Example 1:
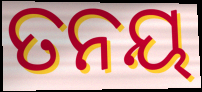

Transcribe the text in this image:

ତନୟ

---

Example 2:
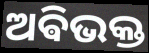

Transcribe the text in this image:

ଅଵିଭକ୍ତ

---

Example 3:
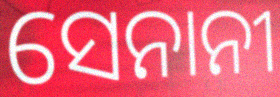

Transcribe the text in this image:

ସେନାନୀ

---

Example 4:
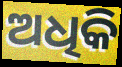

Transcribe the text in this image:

ଅଧିକି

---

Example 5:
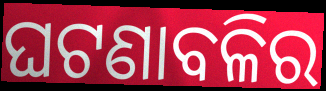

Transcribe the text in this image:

ଘଟଣାବଳିର